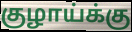
குழாய்க்கு